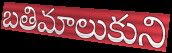
బతిమాలుకుని